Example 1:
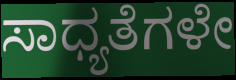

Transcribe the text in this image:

ಸಾಧ್ಯತೆಗಳೇ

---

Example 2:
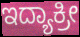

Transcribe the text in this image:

ಇದ್ಯಾಕ್ರೀ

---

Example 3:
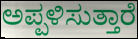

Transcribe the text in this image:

ಅಪ್ಪಳಿಸುತ್ತಾರೆ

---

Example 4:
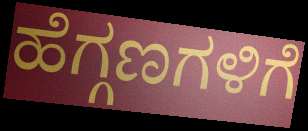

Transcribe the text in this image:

ಹೆಗ್ಗಣಗಳಿಗೆ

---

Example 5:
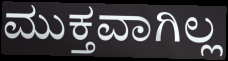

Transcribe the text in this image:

ಮುಕ್ತವಾಗಿಲ್ಲ